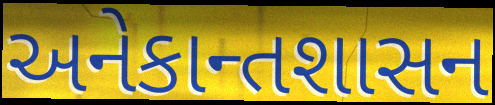
અનેકાન્તશાસન